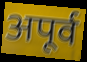
अपूर्व